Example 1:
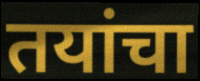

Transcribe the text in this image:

तयांचा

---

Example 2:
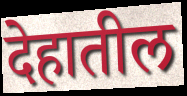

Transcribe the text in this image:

देहातील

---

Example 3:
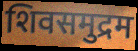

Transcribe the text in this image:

शिवसमुद्रम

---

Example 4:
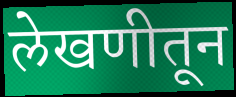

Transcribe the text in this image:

लेखणीतून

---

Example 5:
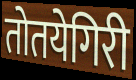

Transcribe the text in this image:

तोतयेगिरी